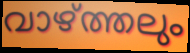
വാഴ്ത്തലും